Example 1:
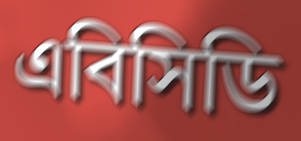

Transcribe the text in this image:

এবিসিডি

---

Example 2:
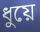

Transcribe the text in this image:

ধুয়ে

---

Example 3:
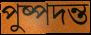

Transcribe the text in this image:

পুষ্পদন্ত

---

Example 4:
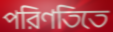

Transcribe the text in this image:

পরিণতিতে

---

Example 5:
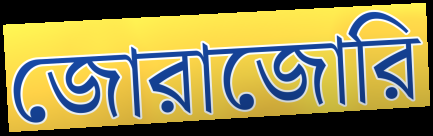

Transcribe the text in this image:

জোরাজোরি